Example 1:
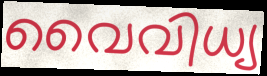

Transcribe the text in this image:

വൈവിധ്യ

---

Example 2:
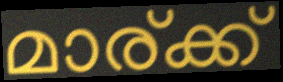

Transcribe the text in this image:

മാര്ക്ക്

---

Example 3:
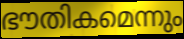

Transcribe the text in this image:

ഭൗതികമെന്നും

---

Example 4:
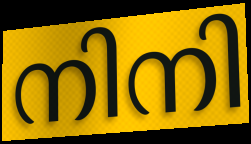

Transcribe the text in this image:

നിനി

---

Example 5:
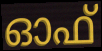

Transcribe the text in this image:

ഓഫ്